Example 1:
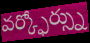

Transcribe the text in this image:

వర్క్ఫోర్స్ను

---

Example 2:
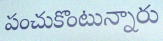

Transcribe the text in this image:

పంచుకొంటున్నారు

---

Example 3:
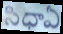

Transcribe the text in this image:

సిధాఏ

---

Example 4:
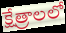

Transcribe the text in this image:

క్షేత్రాలలో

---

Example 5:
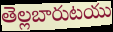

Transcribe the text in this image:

తెల్లబారుటయు